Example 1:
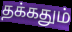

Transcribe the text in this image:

தக்கதும்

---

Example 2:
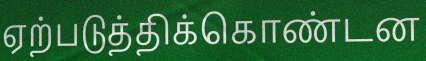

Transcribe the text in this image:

ஏற்படுத்திக்கொண்டன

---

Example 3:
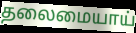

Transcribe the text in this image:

தலைமையாய்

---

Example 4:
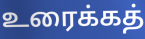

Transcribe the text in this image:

உரைக்கத்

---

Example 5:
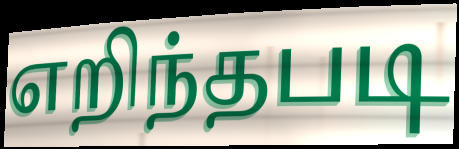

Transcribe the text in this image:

எறிந்தபடி